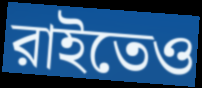
রাইতেও